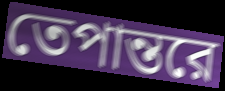
তেপান্তরে